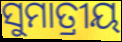
ସୁମାତ୍ରୀୟ